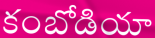
కంబోడియా